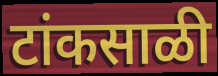
टांकसाळी